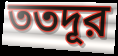
ততদূর